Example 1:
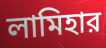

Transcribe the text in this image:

লামিহার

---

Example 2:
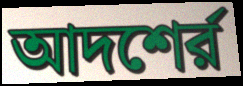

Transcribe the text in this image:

আদশের্র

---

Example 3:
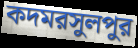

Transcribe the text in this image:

কদমরসুলপুর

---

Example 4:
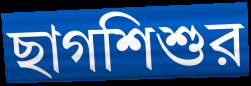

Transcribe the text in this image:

ছাগশিশুর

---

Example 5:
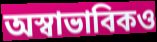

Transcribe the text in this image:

অস্বাভাবিকও